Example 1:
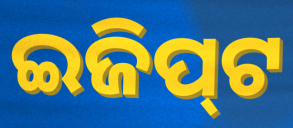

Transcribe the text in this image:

ଇଜିପ୍‍ଟ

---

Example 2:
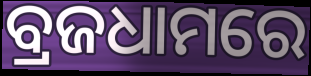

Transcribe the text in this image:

ବ୍ରଜଧାମରେ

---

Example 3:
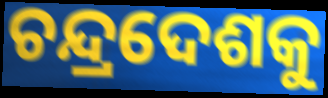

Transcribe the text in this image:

ଚନ୍ଦ୍ରଦେଶକୁ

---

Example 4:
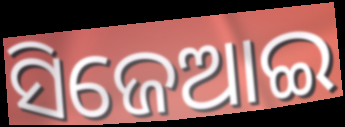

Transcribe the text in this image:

ସିଜେଆଇ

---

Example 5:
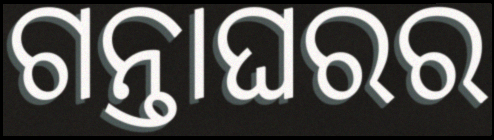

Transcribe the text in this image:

ଗନ୍ତାଘରର